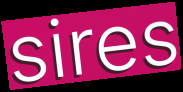
sires